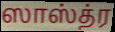
ஸாஸ்த்ர